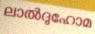
ലാൽദുഹോമ